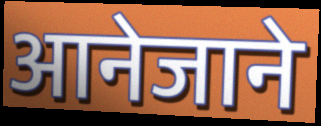
आनेजाने